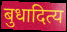
बुधादित्य